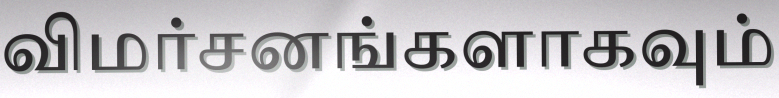
விமர்சனங்களாகவும்